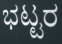
ಭಟ್ಟರ